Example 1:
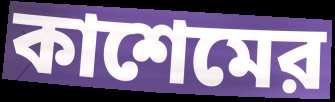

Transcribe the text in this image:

কাশেমের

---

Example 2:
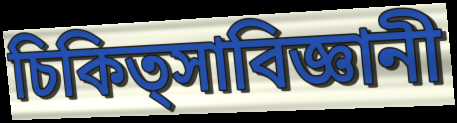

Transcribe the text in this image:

চিকিত্সাবিজ্ঞানী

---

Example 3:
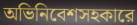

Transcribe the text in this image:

অভিনিবেশসহকারে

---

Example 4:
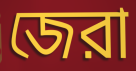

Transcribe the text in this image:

জেরা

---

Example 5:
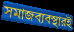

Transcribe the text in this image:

সমাজব্যবস্থারই